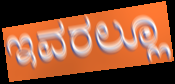
ಇವರಲ್ಲೂ